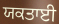
ਯਕਤਾਈ